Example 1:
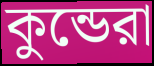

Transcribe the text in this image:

কুন্ডেরা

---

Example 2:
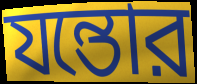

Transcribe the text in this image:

যন্তোর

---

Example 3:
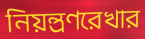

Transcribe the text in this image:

নিয়ন্ত্রণরেখার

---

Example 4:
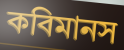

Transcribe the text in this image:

কবিমানস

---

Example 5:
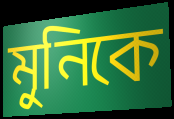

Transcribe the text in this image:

মুনিকে